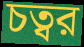
চত্বর